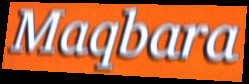
Maqbara